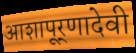
आशापूर्णादेवी